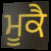
ਮੂਕੈ